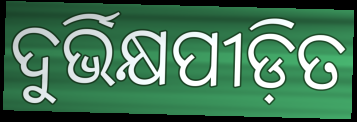
ଦୁର୍ଭିକ୍ଷପୀଡ଼ିତ